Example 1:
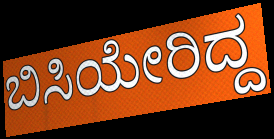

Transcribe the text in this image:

ಬಿಸಿಯೇರಿದ್ದ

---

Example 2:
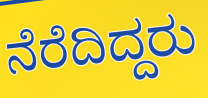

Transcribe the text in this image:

ನೆರೆದಿದ್ದರು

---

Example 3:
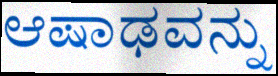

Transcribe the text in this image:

ಆಷಾಢವನ್ನು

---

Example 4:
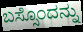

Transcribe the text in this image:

ಬಸ್ಸೊಂದನ್ನು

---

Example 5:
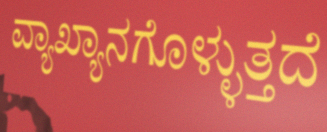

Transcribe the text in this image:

ವ್ಯಾಖ್ಯಾನಗೊಳ್ಳುತ್ತದೆ